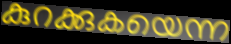
കുറക്കുകയെന്ന